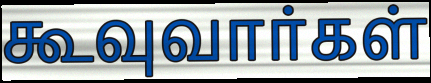
கூவுவார்கள்